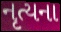
નૃત્યના